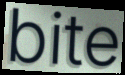
bite